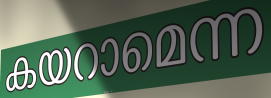
കയറാമെന്ന